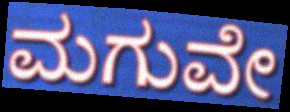
ಮಗುವೇ